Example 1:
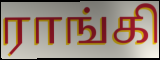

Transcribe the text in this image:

ராங்கி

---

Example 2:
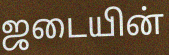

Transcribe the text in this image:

ஜடையின்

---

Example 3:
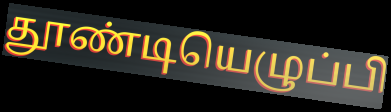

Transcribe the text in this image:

தூண்டியெழுப்பி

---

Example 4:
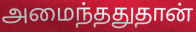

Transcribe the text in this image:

அமைந்ததுதான்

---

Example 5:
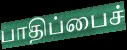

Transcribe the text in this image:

பாதிப்பைச்